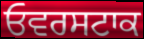
ਓਵਰਸਟਾਕ